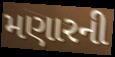
મણારની